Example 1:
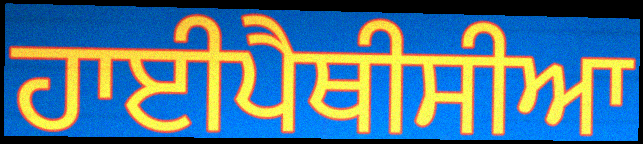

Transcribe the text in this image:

ਹਾਈਪੈਥੀਸੀਆ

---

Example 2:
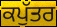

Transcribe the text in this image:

ਕਪੁੱਤਰ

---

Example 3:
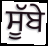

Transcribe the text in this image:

ਸੂੱਬੇ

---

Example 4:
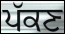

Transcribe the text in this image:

ਪੱਕਣ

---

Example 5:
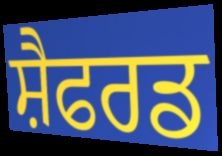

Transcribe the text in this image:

ਸ਼ੈਫਰਡ